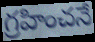
గ్రహించనే